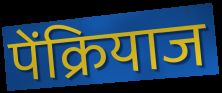
पेंक्रियाज